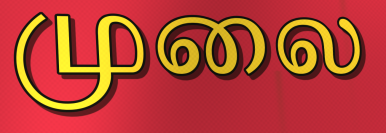
முலை